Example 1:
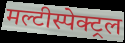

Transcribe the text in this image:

मल्टीस्पेक्ट्रल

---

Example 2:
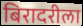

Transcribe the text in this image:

बिरादरीला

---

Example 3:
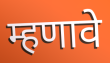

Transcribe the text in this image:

म्हणावे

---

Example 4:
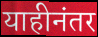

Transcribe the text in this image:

याहीनंतर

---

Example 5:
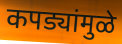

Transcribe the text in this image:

कपड्यांमुळे